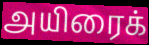
அயிரைக்